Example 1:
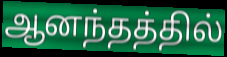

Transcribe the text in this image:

ஆனந்தத்தில்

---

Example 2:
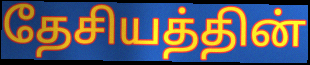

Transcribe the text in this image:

தேசியத்தின்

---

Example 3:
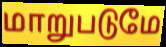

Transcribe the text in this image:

மாறுபடுமே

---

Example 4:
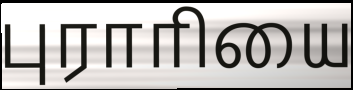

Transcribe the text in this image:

புராரியை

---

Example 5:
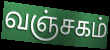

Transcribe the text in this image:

வஞ்சகம்